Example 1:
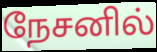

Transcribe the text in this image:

நேசனில்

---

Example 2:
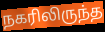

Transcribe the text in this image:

நகரிலிருந்த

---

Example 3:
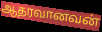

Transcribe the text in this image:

ஆதரவானவன்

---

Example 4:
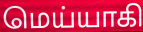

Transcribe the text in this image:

மெய்யாகி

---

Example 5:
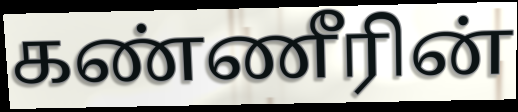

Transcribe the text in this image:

கண்ணீரின்